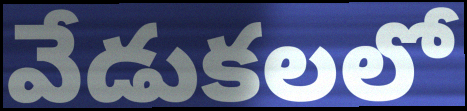
వేడుకలలో